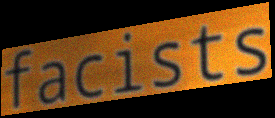
facists